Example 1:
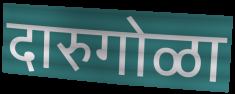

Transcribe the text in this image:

दारुगोळा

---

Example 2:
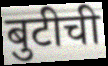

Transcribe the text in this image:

बुटीची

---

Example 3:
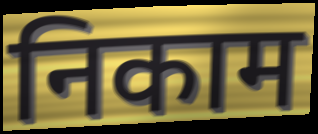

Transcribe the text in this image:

निकाम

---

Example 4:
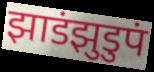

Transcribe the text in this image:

झाडंझुडुपं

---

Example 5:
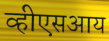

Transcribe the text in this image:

व्हीएसआय